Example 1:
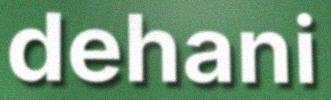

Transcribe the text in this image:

dehani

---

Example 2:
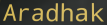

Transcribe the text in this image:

Aradhak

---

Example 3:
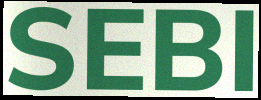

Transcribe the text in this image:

SEBI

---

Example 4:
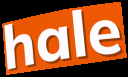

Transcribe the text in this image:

hale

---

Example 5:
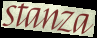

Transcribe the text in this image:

stanza